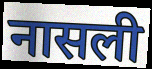
नासली